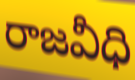
రాజవీధి